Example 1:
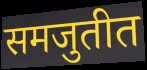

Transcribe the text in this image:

समजुतीत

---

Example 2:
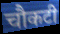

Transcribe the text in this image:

चौकटी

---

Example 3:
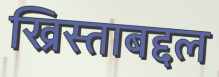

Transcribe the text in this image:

ख्रिस्ताबद्दल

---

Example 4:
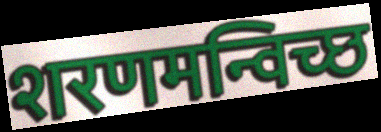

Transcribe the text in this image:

शरणमन्विच्छ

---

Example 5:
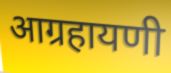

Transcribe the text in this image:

आग्रहायणी